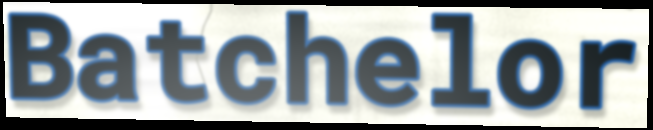
Batchelor